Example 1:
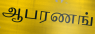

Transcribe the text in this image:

ஆபரணங்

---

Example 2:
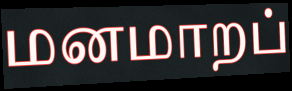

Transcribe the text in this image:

மனமாறப்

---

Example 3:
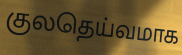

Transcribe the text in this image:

குலதெய்வமாக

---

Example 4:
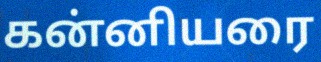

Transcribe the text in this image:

கன்னியரை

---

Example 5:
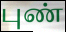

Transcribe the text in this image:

புண்